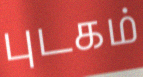
புடகம்